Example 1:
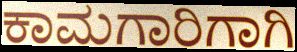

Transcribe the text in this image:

ಕಾಮಗಾರಿಗಾಗಿ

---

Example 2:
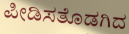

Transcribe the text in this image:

ಪೀಡಿಸತೊಡಗಿದ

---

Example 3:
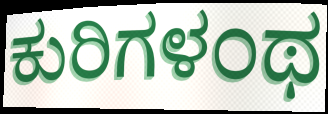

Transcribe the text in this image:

ಕುರಿಗಳಂಥ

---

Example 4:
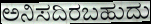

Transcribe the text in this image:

ಅನಿಸದಿರಬಹುದು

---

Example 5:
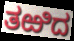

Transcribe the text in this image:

ತಱಿದ